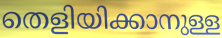
തെളിയിക്കാനുള്ള